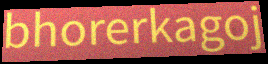
bhorerkagoj